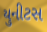
યુનીટસ